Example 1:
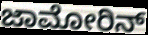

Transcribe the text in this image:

ಜಾಮೋರಿನ್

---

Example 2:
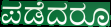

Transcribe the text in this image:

ಪಡೆದರೂ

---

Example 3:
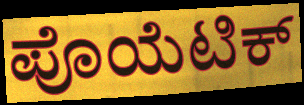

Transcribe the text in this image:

ಪೊಯೆಟಿಕ್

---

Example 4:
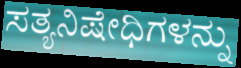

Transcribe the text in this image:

ಸತ್ಯನಿಷೇಧಿಗಳನ್ನು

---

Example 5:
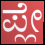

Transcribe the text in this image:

ಪ್ಲೇ